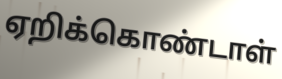
ஏறிக்கொண்டாள்